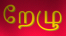
றேழு